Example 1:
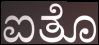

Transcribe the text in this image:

ಐತೊ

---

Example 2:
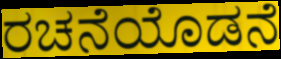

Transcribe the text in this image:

ರಚನೆಯೊಡನೆ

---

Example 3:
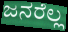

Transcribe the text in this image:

ಜನರೆಲ್ಲ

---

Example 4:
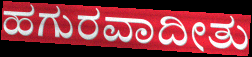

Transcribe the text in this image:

ಹಗುರವಾದೀತು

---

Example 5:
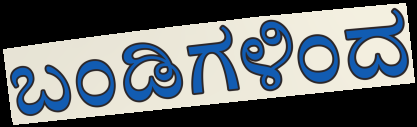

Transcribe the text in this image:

ಬಂಡಿಗಳಿಂದ